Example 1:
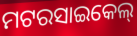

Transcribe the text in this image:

ମଟରସାଇକେଲ୍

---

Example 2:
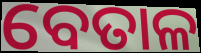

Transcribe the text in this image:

ବେତାଳ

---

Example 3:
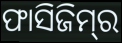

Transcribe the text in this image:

ଫାସିଜିମ୍‌ର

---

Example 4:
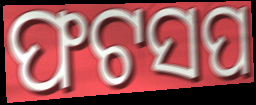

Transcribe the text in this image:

ଫଟସପ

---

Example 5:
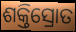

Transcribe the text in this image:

ଶକ୍ତିସ୍ରୋତ